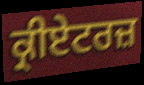
ਕ੍ਰੀਏਟਰਜ਼